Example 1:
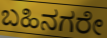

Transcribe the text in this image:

ಬಹಿನಗರೇ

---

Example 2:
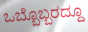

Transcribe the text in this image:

ಒಬ್ಬೊಬ್ಬರದ್ದೂ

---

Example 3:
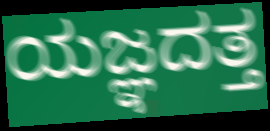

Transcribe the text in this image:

ಯಜ್ಞದತ್ತ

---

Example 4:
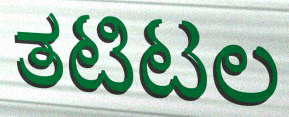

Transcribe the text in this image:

ತಟಿಟಲ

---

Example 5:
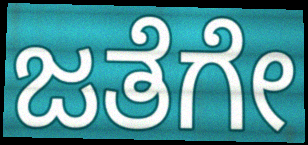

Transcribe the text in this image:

ಜತೆಗೇ